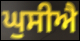
ਘੁਸੀਐ